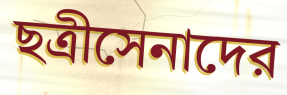
ছত্রীসেনাদের